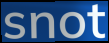
snot